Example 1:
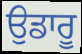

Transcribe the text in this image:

ਉਡਾਰੂ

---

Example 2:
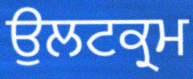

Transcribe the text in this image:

ਉਲਟਕ੍ਰਮ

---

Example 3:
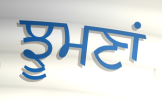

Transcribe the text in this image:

ਝੂਮਣਾਂ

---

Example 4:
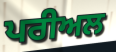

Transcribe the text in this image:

ਪਰੀਅਲ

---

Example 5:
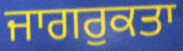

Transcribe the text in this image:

ਜਾਗਰੁਕਤਾ